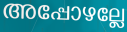
അപ്പോഴല്ലേ